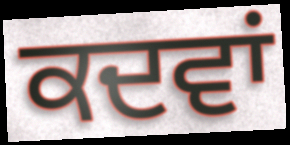
ਕਦਵਾਂ